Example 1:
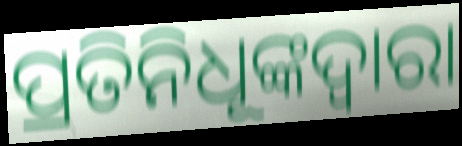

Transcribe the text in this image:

ପ୍ରତିନିଧୂଙ୍କଦ୍ଵାରା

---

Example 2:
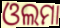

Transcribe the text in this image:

ଓଲମା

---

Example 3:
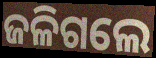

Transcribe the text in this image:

ଜଳିଗଲେ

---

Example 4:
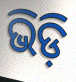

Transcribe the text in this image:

ଭିଡ଼ି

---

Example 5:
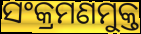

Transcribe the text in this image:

ସଂକ୍ରମଣମୁକ୍ତ